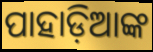
ପାହାଡ଼ିଆଙ୍କ